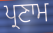
ਪ੍ਰਣਾਮ